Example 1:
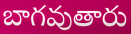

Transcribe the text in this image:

బాగవుతారు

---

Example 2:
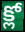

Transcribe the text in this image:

క్లో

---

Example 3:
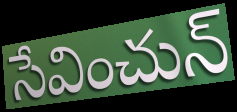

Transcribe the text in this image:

సేవించున్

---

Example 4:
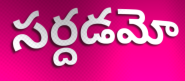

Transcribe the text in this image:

సర్దడమో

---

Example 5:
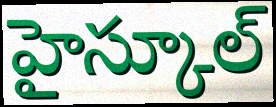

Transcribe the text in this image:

హైస్కూల్